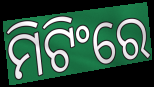
ମିଟିଂରେ